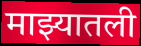
माझ्यातली